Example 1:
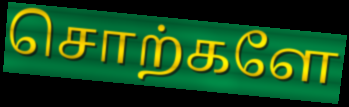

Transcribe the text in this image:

சொற்களே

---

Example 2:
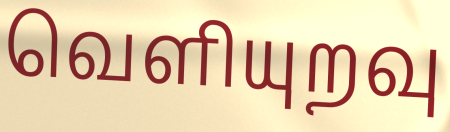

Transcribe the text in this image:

வெளியுறவு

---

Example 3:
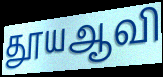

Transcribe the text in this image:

தூயஆவி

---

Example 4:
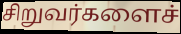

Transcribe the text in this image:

சிறுவர்களைச்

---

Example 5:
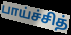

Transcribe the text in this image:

பாய்ச்சித்